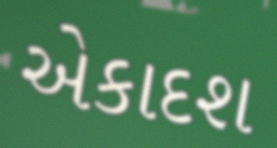
એકાદશ